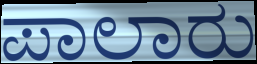
ಪಾಲಾರು